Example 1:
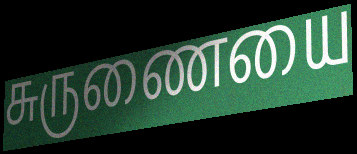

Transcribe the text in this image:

சுருணையை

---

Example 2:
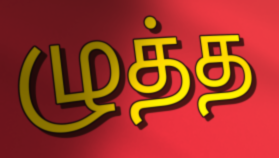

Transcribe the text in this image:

ழுத்த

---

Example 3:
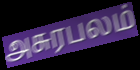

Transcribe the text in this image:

அசுரபலம்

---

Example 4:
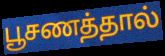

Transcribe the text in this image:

பூசணத்தால்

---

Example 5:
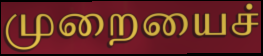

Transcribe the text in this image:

முறையைச்